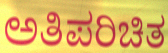
ಅತಿಪರಿಚಿತ